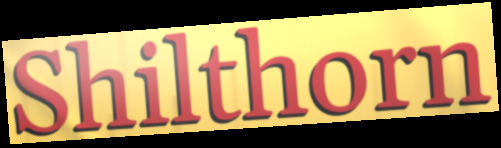
Shilthorn